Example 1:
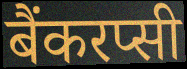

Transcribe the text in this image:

बैंकरप्सी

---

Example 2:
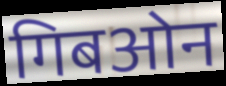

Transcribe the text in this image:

गिबओन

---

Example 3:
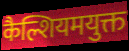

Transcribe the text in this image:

कैल्शियमयुक्त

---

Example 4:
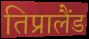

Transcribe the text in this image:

तिप्रालैंड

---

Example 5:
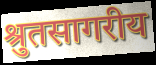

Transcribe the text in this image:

श्रुतसागरीय